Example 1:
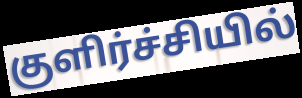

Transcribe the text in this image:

குளிர்ச்சியில்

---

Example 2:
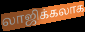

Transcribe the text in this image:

லாஜிக்கலாக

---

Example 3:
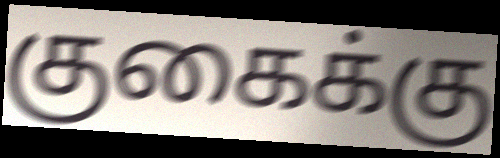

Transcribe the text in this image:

குகைக்கு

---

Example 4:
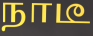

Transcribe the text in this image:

நாடீ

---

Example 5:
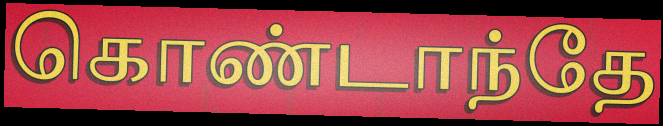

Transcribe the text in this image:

கொண்டாந்தே